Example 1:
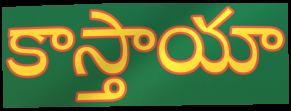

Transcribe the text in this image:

కాస్తాయా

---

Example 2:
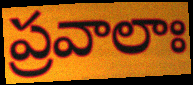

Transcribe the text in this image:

ప్రవాలాః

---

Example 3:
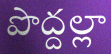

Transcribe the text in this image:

పొద్దల్లా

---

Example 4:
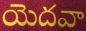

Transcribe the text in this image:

యెదవా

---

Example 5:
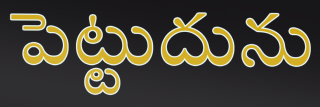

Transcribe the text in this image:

పెట్టుదును